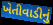
ખેતીવાડીનું